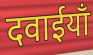
दवाईयाँ